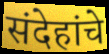
संदेहांचे